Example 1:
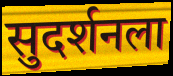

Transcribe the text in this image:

सुदर्शनला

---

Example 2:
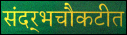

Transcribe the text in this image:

संदर्भचौकटीत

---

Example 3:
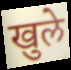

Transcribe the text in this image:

खुले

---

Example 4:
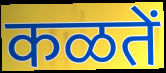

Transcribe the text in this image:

कळतें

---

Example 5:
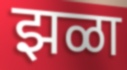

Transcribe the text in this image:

झळा